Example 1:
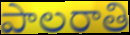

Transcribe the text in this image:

పాలరాతి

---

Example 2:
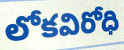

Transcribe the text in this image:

లోకవిరోధి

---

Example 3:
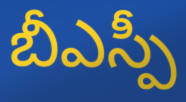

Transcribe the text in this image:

బీఎస్పీ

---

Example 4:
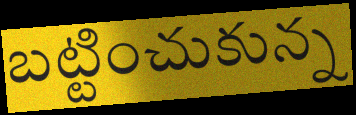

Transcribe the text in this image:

బట్టించుకున్న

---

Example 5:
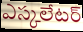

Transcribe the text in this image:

ఎస్కలేటర్